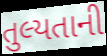
તુલ્યતાની